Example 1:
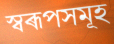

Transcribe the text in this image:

স্বৰূপসমূহ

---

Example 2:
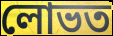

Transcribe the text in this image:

লোভত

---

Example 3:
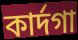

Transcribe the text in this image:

কাৰ্দগা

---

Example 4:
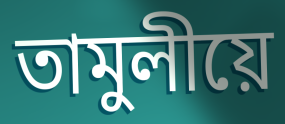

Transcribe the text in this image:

তামুলীয়ে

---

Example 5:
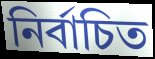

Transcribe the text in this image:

নিৰ্বাচিত